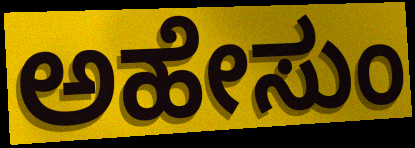
ಅಹೇಸುಂ